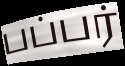
பப்பர்